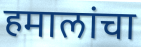
हमालांचा